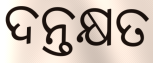
ଦନ୍ତକ୍ଷତ